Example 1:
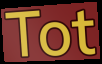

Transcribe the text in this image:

Tot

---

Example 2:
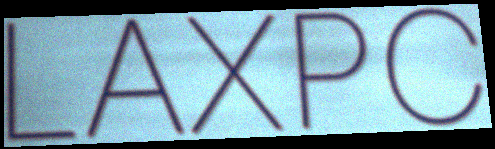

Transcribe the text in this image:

LAXPC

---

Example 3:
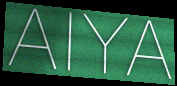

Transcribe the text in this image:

AIYA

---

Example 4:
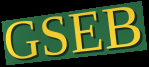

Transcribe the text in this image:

GSEB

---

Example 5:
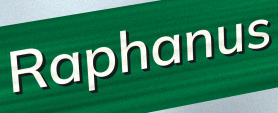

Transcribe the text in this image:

Raphanus